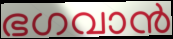
ഭഗവാൻ